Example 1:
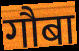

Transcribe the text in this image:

गौबा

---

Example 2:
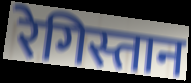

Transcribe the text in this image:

रेगिस्‍तान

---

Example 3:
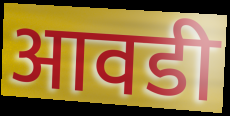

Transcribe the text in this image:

आवडी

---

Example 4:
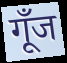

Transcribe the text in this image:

गूँज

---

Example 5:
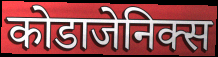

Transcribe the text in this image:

कोडाजेनिक्स